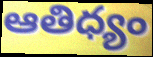
ఆతిధ్యం